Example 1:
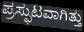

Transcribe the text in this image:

ಪ್ರಸ್ಫುಟವಾಗಿತ್ತು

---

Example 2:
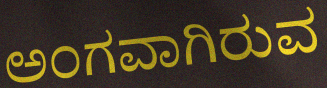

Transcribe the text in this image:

ಅಂಗವಾಗಿರುವ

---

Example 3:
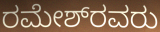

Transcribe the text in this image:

ರಮೇಶ್‌ರವರು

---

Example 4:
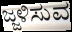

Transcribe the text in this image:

ಜ್ಜಳಿಸುವ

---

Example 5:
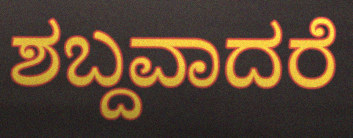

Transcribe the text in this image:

ಶಬ್ದವಾದರೆ